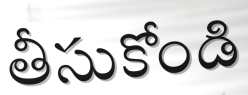
తీసుకోండి